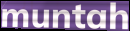
muntah